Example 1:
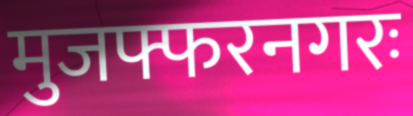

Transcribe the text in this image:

मुजफ्फरनगरः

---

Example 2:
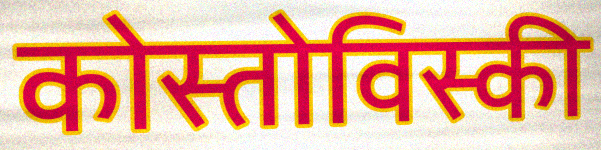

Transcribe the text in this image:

कोस्तोविस्की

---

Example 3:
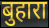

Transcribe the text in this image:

बुहारा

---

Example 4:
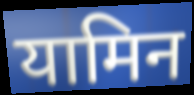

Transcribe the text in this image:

यामिन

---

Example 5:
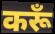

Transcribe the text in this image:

करूँ